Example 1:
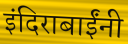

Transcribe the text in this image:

इंदिराबाईंनी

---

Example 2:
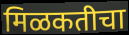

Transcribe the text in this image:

मिळकतीचा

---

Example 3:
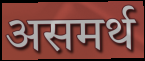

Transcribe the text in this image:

असमर्थ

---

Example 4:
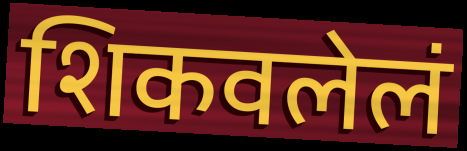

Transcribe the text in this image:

शिकवलेलं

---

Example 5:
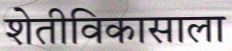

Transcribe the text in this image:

शेतीविकासाला